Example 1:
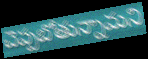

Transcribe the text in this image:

చెప్పబోతున్నామని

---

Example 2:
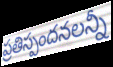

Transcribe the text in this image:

ప్రతిస్పందనలన్నీ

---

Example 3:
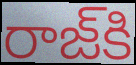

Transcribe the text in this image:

రాజ్‌కి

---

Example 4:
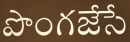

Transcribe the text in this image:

పొంగజేసే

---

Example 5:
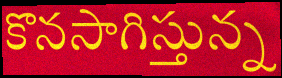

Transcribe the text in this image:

కొనసాగిస్తున్న